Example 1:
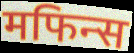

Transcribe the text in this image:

मफिन्स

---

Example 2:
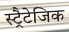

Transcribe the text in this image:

स्ट्रैटेजिक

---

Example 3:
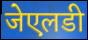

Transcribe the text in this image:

जेएलडी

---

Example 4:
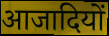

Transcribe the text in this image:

आजादियों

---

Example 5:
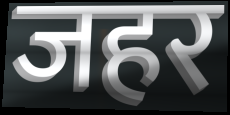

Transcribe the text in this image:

जहर